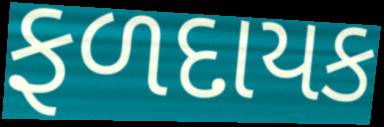
ફળદાયક